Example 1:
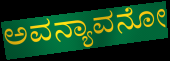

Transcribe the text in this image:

ಅವನ್ಯಾವನೋ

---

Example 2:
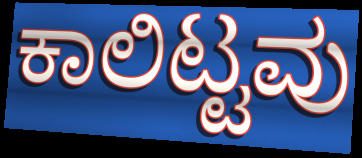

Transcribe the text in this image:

ಕಾಲಿಟ್ಟವು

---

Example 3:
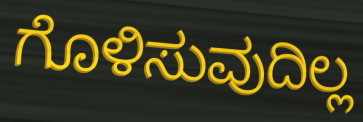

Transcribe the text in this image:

ಗೊಳಿಸುವುದಿಲ್ಲ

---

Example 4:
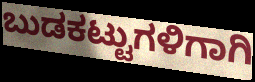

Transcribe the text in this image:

ಬುಡಕಟ್ಟುಗಳಿಗಾಗಿ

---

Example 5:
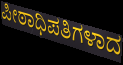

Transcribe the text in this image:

ಪೀಠಾಧಿಪತಿಗಳಾದ